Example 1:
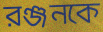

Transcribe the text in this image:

রঞ্জনকে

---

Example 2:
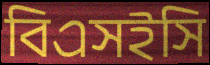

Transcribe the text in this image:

বিএসইসি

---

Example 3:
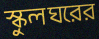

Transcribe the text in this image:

স্কুলঘরের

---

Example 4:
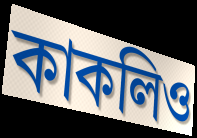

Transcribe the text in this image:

কাকলিও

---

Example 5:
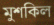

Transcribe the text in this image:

মুশকিল